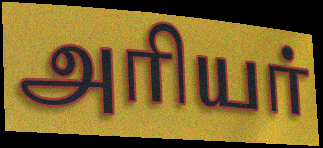
அரியர்